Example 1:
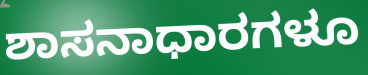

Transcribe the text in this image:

ಶಾಸನಾಧಾರಗಳೂ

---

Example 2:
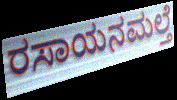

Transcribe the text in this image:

ರಸಾಯನಮಲ್ತೆ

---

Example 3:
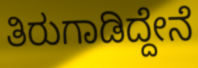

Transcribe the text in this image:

ತಿರುಗಾಡಿದ್ದೇನೆ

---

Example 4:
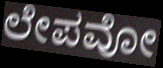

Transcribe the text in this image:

ಲೇಪವೋ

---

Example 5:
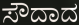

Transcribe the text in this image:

ಸೌದಾದ